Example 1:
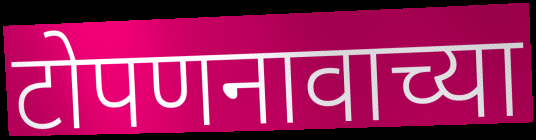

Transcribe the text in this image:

टोपणनावाच्या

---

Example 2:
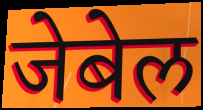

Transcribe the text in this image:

जेबेल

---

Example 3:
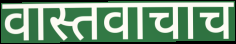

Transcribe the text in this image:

वास्तवाचाच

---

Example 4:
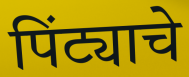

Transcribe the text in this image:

पिंट्याचे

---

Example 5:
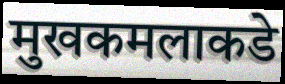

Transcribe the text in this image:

मुखकमलाकडे